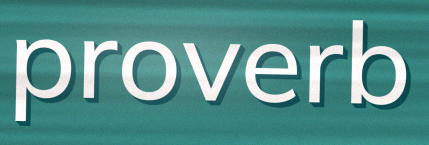
proverb